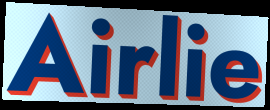
Airlie